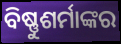
ବିଷ୍ଣୁଶର୍ମାଙ୍କର